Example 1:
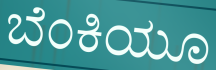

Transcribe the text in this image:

ಬೆಂಕಿಯೂ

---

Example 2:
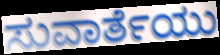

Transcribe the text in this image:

ಸುವಾರ್ತೆಯು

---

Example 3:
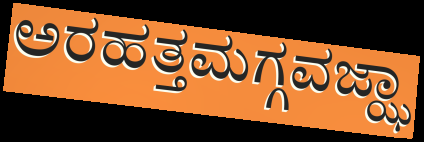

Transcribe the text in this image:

ಅರಹತ್ತಮಗ್ಗವಜ್ಝಾ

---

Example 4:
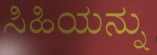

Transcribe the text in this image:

ಸಿಹಿಯನ್ನು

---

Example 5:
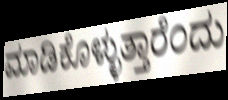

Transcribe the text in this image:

ಮಾಡಿಕೊಳ್ಳುತ್ತಾರೆಂದು